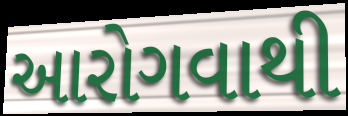
આરોગવાથી